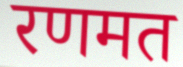
रणमत